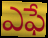
ఎఫే